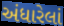
અંધારેલાં